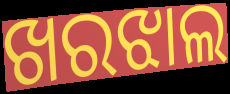
ଖରଝାଲ